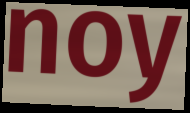
noy